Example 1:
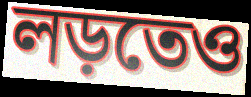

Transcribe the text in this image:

লড়তেও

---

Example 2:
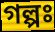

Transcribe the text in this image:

গল্পঃ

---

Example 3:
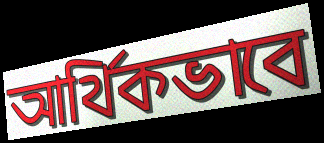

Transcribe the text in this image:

আর্থিকভাবে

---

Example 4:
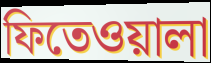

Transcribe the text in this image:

ফিতেওয়ালা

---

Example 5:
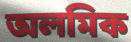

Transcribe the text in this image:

অলমিক